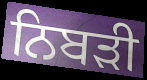
ਨਿਬੜੀ